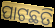
ପାଟଛତି